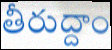
తీరుద్దాం